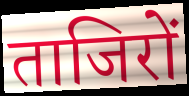
ताजिरों